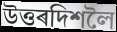
উত্তৰদিশলৈ